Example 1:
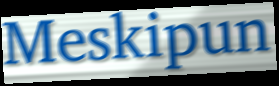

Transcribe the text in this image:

Meskipun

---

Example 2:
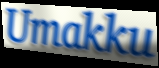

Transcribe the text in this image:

Umakku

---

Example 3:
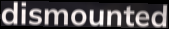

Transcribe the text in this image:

dismounted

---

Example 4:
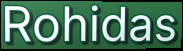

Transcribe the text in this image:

Rohidas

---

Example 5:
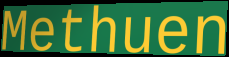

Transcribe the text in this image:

Methuen